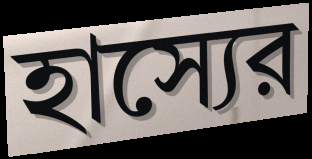
হাস্যের